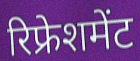
रिफ्रेशमेंट